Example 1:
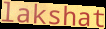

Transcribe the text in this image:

lakshat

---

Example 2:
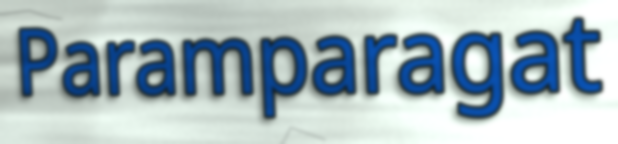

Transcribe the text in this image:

Paramparagat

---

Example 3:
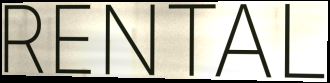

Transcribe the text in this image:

RENTAL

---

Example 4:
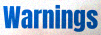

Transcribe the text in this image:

Warnings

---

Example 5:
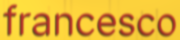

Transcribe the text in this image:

francesco